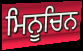
ਮਿਨੂਚਿਨ